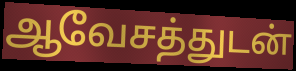
ஆவேசத்துடன்